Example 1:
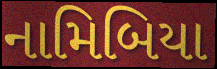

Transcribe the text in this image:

નામિબિયા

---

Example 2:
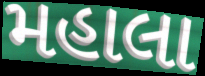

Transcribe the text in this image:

મહાલા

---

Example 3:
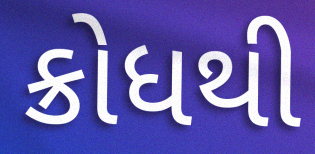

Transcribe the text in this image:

ક્રોધથી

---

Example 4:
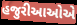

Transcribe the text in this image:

હજુરીઆઓએ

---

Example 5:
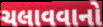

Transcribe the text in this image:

ચલાવવાનો